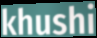
khushi